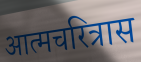
आत्मचरित्रास